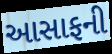
આસાફની